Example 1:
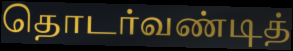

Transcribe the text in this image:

தொடர்வண்டித்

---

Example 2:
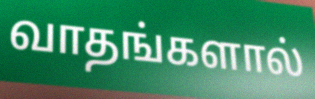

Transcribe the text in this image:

வாதங்களால்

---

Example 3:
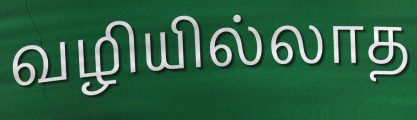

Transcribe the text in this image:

வழியில்லாத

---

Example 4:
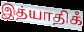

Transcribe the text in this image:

இத்யாதிகஂ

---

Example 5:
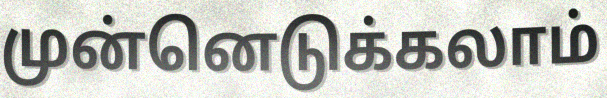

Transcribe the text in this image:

முன்னெடுக்கலாம்